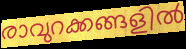
രാവുറക്കങ്ങളിൽ